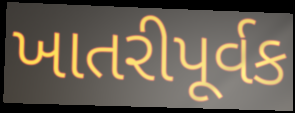
ખાતરીપૂર્વક